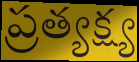
ప్రత్యక్ష్య